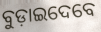
ବୁଡ଼ାଇଦେବେ